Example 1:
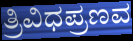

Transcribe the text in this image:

ತ್ರಿವಿಧಪ್ರಣವ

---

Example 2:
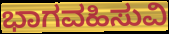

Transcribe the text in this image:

ಭಾಗವಹಿಸುವಿ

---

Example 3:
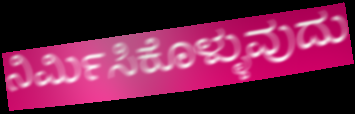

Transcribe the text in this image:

ನಿರ್ಮಿಸಿಕೊಳ್ಳುವುದು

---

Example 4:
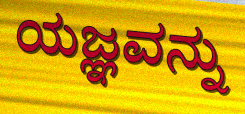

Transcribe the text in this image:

ಯಜ್ಞವನ್ನು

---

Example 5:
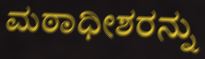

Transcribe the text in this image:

ಮಠಾಧೀಶರನ್ನು